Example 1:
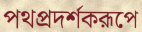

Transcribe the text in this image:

পথপ্রদর্শকরূপে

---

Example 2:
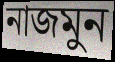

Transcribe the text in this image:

নাজমুন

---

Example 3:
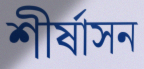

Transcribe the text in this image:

শীর্ষাসন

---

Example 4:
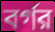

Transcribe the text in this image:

বর্গর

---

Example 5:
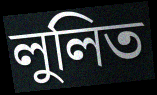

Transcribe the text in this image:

লুলিত